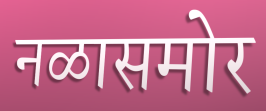
नळासमोर